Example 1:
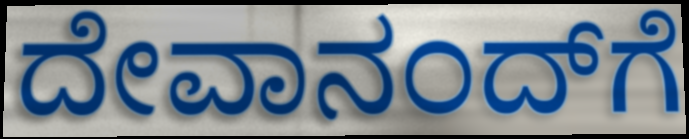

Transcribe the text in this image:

ದೇವಾನಂದ್‌ಗೆ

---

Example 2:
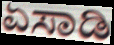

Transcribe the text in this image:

ಏಸಾಡಿ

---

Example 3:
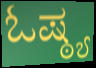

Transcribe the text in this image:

ಓಷ್ಠ್ಯ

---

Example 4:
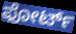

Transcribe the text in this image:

ಫೋರ್ಟ್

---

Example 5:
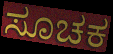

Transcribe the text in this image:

ಸೂಚಕ